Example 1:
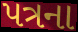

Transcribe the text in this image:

પત્રના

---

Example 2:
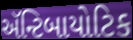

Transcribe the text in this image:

ઍન્ટિબાયોટિક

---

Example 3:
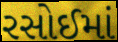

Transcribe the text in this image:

રસોઈમાં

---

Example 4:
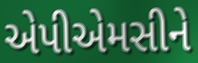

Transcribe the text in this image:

એપીએમસીને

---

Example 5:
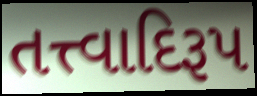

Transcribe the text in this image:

તત્ત્વાદિરૂપ